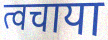
त्वचाया